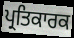
ਪ੍ਰਤਿਕਾਰਕ